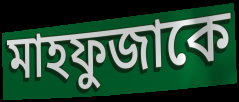
মাহফুজাকে